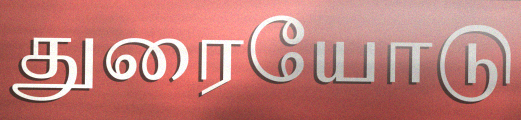
துரையோடு